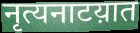
नृत्यनाटय़ात